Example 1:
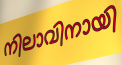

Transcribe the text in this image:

നിലാവിനായി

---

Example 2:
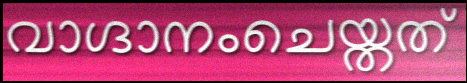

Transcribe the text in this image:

വാഗ്ദാനംചെയ്തത്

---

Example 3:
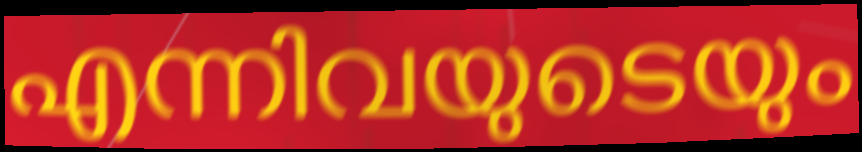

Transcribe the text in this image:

എന്നിവയുടെയും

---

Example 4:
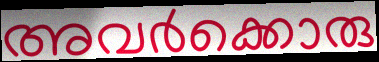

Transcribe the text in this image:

അവർക്കൊരു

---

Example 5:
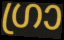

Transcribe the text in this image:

ഗ്രാ